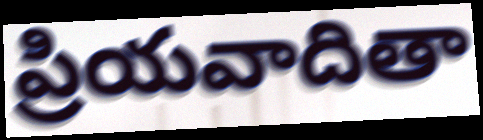
ప్రియవాదితా